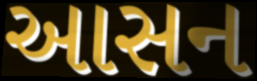
આસન